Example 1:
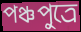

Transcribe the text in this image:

পঞ্চপুত্রে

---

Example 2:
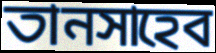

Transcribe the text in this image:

তানসাহেব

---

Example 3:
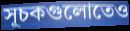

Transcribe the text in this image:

সূচকগুলোতেও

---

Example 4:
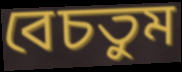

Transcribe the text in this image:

বেচতুম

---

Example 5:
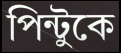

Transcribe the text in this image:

পিন্টুকে